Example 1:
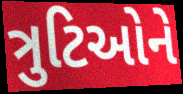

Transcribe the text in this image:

ત્રુટિઓને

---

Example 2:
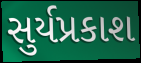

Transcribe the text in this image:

સુર્યપ્રકાશ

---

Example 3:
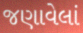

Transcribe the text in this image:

જણાવેલાં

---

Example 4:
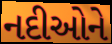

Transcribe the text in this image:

નદીઓને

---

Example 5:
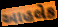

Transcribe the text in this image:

આહલેક